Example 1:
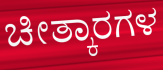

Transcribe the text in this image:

ಚೀತ್ಕಾರಗಳ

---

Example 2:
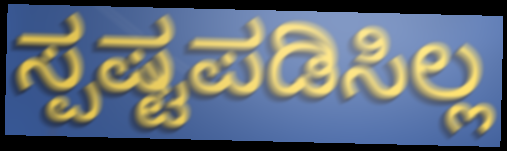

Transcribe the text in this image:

ಸ್ಪಷ್ಟಪಡಿಸಿಲ್ಲ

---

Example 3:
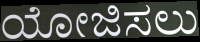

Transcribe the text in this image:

ಯೋಜಿಸಲು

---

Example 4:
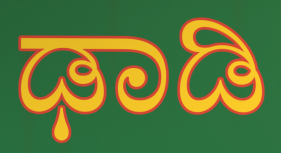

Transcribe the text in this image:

ಢಾಡಿ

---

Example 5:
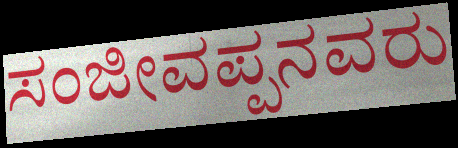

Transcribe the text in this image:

ಸಂಜೀವಪ್ಪನವರು